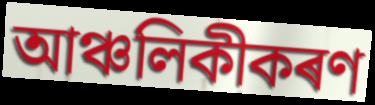
আঞ্চলিকীকৰণ